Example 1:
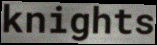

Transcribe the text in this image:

knights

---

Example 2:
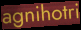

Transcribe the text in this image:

agnihotri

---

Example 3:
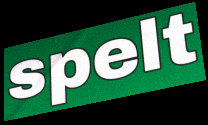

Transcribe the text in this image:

spelt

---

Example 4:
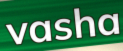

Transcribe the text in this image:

vasha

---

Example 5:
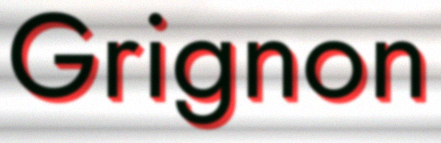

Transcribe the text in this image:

Grignon